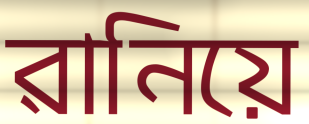
ৱানিয়ে